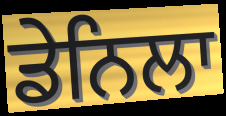
ਡੇਨਿਲਾ